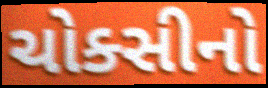
ચોક્સીનો